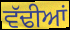
ਵੱਢੀਆਂ